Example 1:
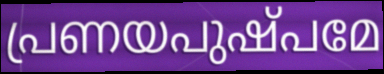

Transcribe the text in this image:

പ്രണയപുഷ്പമേ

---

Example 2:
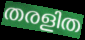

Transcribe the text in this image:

തരളിത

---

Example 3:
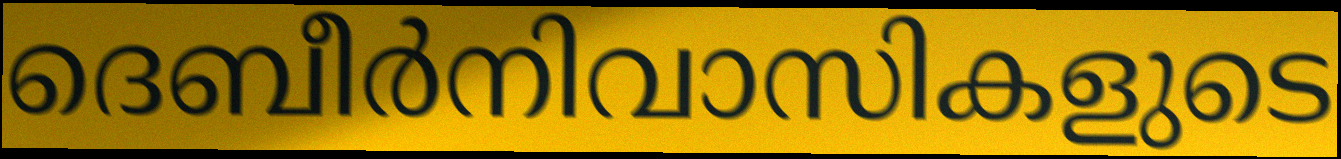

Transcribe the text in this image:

ദെബീർനിവാസികളുടെ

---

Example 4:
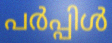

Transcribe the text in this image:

പർപ്പിൾ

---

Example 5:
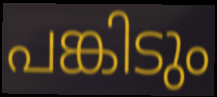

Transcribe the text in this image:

പങ്കിടും